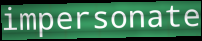
impersonate